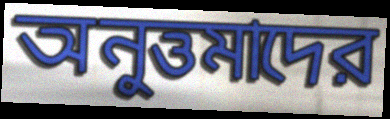
অনুত্তমাদের